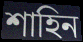
শাহিন